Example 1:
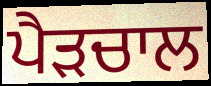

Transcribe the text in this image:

ਪੈੜਚਾਲ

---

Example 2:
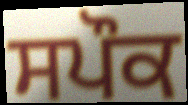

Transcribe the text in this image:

ਸਪੌਕ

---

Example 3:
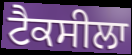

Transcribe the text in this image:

ਟੈਕਸੀਲਾ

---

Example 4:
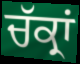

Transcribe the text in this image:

ਚੱਕ੍ਰਾਂ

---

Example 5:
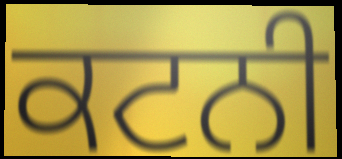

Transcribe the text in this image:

ਕਟਨੀ